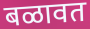
बळावत